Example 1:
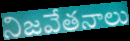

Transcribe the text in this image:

నిజవేతనాలు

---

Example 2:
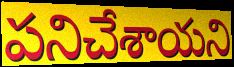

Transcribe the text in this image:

పనిచేశాయని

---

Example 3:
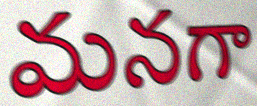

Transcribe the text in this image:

మనగా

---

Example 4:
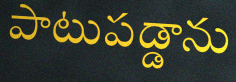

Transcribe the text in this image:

పాటుపడ్డాను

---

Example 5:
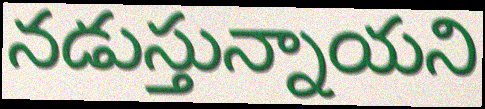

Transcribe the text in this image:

నడుస్తున్నాయని